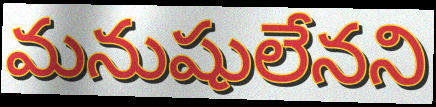
మనుషులేనని